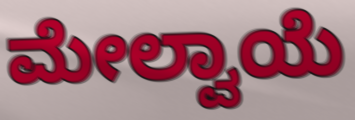
ಮೇಲ್ವಾಯೆ